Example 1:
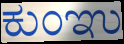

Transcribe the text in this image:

ಕುಂಞು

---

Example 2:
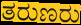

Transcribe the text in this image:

ತರುಣರು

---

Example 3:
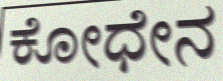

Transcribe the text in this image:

ಕೋಧೇನ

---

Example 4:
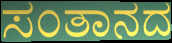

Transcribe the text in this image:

ಸಂತಾನದ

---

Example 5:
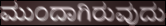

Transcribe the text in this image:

ಮುಂದಾಗಿರುವುದು